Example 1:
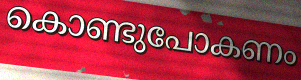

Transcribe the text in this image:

കൊണ്ടുപോകണം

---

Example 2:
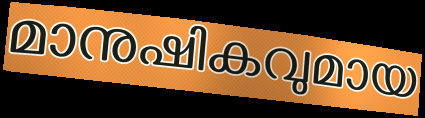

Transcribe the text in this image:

മാനുഷികവുമായ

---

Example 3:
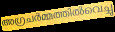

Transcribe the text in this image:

അഗ്രചർമ്മത്തിൽവെച്ചു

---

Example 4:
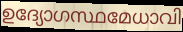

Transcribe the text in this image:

ഉദ്യോഗസ്ഥമേധാവി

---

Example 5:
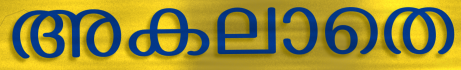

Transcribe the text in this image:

അകലാതെ